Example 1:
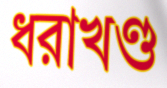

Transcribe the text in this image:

ধরাখণ্ড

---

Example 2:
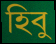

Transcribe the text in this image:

হিবু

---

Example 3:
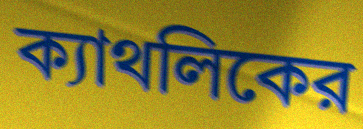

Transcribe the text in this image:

ক্যাথলিকের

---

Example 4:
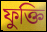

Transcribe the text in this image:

ফুক্তি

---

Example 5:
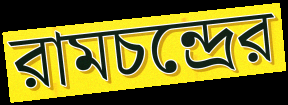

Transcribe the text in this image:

রামচন্দ্রের